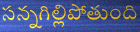
సన్నగిల్లిపోతుంది